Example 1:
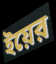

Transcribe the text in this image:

ইয়ের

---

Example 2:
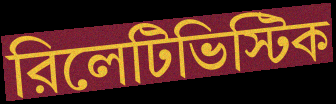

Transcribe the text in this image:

রিলেটিভিস্টিক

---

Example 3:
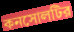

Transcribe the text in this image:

কনসোলটির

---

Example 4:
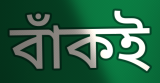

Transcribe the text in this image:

বাঁকই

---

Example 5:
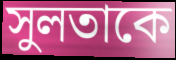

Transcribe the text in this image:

সুলতাকে